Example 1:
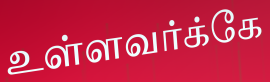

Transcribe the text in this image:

உள்ளவர்க்கே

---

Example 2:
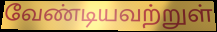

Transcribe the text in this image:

வேண்டியவற்றுள்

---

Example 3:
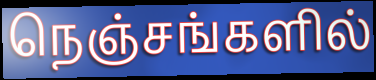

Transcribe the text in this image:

நெஞ்சங்களில்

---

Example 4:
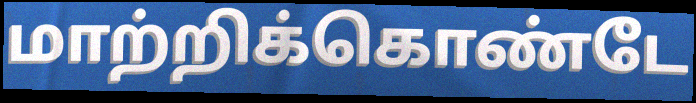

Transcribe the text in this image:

மாற்றிக்கொண்டே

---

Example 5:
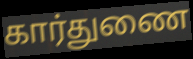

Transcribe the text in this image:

கார்துணை